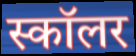
स्कॉलर